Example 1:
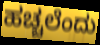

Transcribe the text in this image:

ಹಚ್ಚಲೆಂದು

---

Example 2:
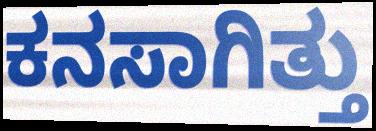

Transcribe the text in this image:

ಕನಸಾಗಿತ್ತು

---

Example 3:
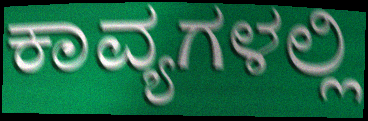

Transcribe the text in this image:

ಕಾವ್ಯಗಳಲ್ಲಿ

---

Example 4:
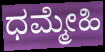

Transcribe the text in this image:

ಧಮ್ಮೇಹಿ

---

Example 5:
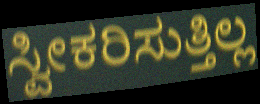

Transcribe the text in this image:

ಸ್ವೀಕರಿಸುತ್ತಿಲ್ಲ